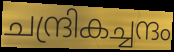
ചന്ദ്രികച്ചന്ദം